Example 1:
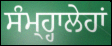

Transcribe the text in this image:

ਸੰਮ੍ਹ੍ਹਾਲੇਹਾਂ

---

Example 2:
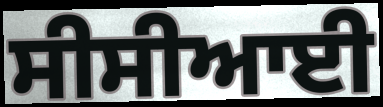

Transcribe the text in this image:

ਸੀਸੀਆਈ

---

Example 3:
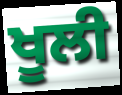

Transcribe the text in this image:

ਖੂਲੀ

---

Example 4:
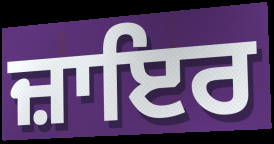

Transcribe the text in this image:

ਜ਼ਾਇਰ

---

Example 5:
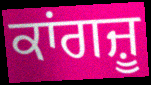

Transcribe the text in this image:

ਕਾਂਗਜ਼ੂ